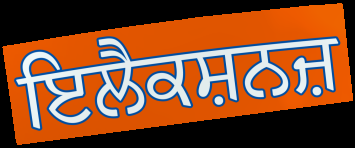
ਇਲੈਕਸ਼ਨਜ਼